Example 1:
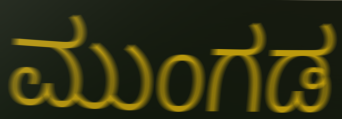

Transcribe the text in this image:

ಮುಂಗಡ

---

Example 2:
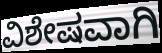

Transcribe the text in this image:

ವಿಶೇಷವಾಗಿ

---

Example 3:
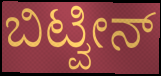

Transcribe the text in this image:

ಬಿಟ್ವೀನ್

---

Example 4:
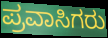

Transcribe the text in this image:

ಪ್ರವಾಸಿಗರು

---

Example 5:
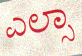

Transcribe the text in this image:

ಎಲ್ಸಾ